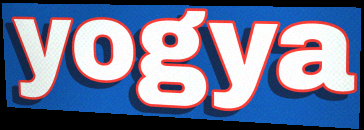
yogya